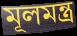
মূলমন্ত্র